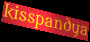
kisspandya